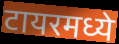
टायरमध्ये